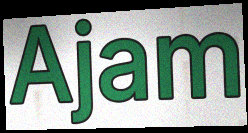
Ajam